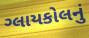
ગ્લાયકોલનું